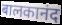
बालकानंद